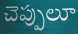
చెప్పులూ